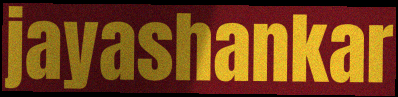
jayashankar